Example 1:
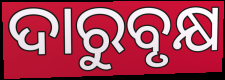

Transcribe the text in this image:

ଦାରୁବୃକ୍ଷ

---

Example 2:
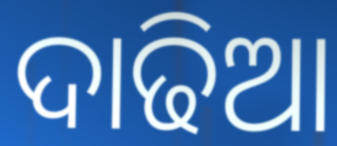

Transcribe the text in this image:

ଦାଢିଆ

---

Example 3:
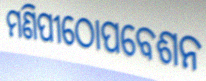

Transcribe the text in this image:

ମଣିପୀଠୋପବେଶନ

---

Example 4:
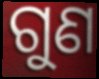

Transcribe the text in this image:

ଗୁଣ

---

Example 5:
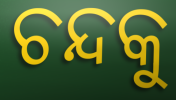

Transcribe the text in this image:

ଚନ୍ଦକୁ